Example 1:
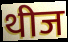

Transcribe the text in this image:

थीज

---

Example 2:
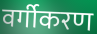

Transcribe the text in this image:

वर्गीकरण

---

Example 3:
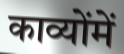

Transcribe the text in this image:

काव्योंमें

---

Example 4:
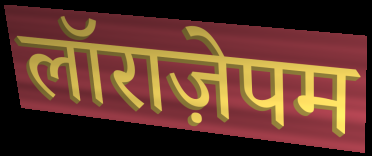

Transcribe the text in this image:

लॉराज़ेपम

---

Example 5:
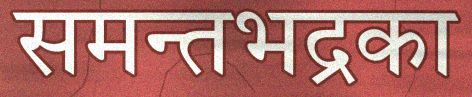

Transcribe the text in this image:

समन्तभद्रका